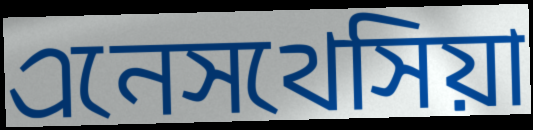
এনেসথেসিয়া